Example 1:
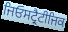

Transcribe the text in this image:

ਜਿਓਸਟ੍ਰੈਟੀਜਿਕ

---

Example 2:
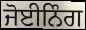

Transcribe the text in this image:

ਜੋਈਨਿੰਗ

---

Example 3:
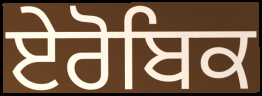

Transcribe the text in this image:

ਏਰੋਬਿਕ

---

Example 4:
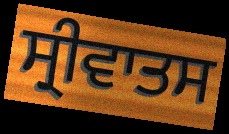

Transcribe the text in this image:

ਸ੍ਰੀਵਾਤਸ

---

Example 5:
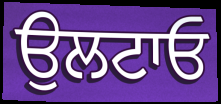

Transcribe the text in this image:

ਉਲਟਾਓ